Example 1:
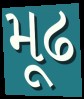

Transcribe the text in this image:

મૂઢ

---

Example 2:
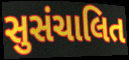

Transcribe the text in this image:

સુસંચાલિત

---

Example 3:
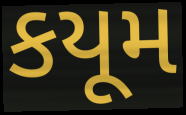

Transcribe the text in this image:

કયૂમ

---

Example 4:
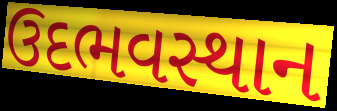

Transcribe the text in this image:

ઉદભવસ્થાન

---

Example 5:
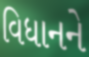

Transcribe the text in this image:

વિધાનને